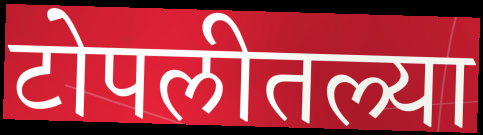
टोपलीतल्या